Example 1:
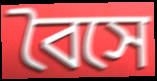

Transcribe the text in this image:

বৈসে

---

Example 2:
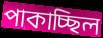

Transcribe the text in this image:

পাকাচ্ছিল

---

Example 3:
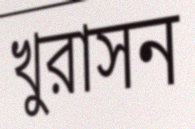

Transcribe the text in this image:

খুরাসন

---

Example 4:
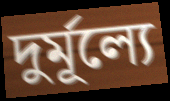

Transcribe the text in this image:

দুর্মূল্যে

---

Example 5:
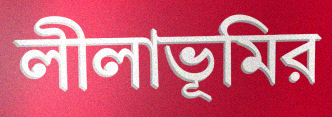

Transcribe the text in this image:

লীলাভূমির